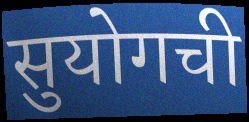
सुयोगची